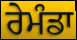
ਰੇਮੰਡਾ